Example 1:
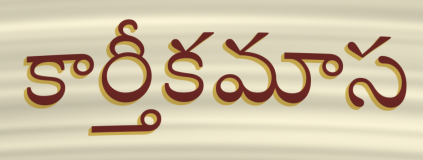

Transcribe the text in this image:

కార్తీకమాస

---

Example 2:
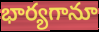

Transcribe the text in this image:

భార్యగానూ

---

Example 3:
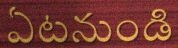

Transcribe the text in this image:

ఏటనుండి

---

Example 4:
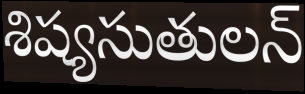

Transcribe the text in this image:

శిష్యసుతులన్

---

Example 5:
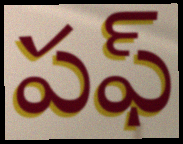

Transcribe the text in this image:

పఫ్